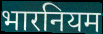
भारनियम